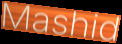
Mashid